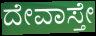
ದೇವಾಸ್ತೇ